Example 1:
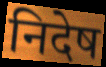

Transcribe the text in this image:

निदेष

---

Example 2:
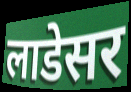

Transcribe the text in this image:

लाडेसर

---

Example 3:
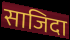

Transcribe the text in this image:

साजिदा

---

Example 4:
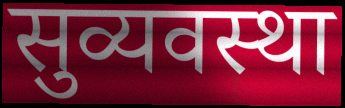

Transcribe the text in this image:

सुव्यवस्था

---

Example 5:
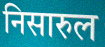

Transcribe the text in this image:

निसारुल